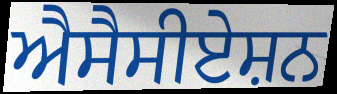
ਐਸੈਸੀਏਸ਼ਨ